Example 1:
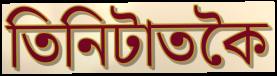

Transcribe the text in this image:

তিনিটাতকৈ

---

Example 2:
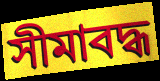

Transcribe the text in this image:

সীমাবদ্ধ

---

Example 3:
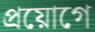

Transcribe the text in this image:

প্ৰয়োগে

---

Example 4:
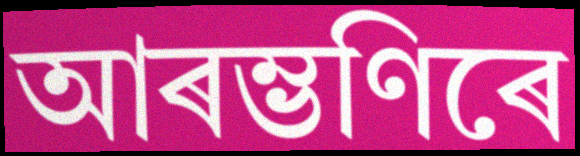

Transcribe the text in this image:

আৰম্ভণিৰে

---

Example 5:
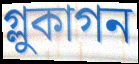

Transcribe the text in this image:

গ্লুকাগন